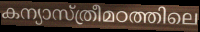
കന്യാസ്ത്രീമഠത്തിലെ